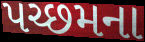
પચ્છમના